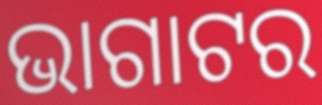
ଭାଗାଟର